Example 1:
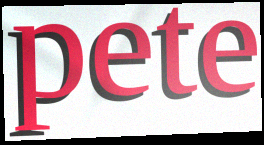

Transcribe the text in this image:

pete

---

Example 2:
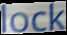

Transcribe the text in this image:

lock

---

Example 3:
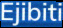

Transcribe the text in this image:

Ejibiti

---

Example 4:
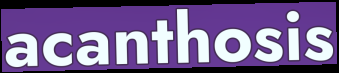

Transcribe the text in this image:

acanthosis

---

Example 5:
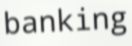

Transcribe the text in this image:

banking